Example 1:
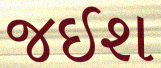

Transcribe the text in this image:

જઈશ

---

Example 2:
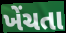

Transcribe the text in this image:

ખેંચતા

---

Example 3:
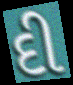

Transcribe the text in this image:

દી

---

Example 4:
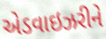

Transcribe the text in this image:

એડવાઇઝરીને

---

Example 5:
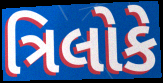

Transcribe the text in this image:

ત્રિલોકે